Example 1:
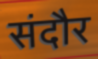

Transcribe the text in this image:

संदौर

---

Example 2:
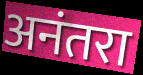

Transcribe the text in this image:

अनंतरा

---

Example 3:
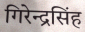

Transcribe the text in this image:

गिरेन्द्रसिंह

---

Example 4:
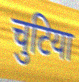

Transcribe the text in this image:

चुटिया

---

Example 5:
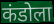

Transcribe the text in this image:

कंडोला